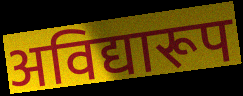
अविद्यारूप